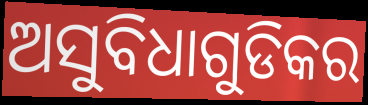
ଅସୁବିଧାଗୁଡିକର